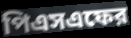
পিএসএফের